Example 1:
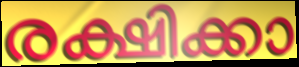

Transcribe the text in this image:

രക്ഷിക്കാ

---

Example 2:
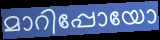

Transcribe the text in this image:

മാറിപ്പോയോ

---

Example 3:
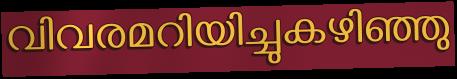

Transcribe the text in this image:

വിവരമറിയിച്ചുകഴിഞ്ഞു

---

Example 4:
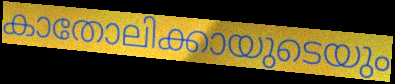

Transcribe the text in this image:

കാതോലിക്കായുടെയും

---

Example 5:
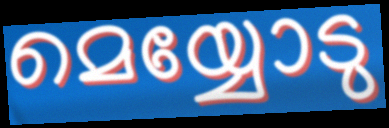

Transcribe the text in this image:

മെയ്യോടു